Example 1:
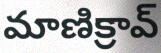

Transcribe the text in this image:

మాణిక్రావ్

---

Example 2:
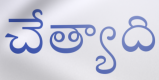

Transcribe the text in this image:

చేత్యాది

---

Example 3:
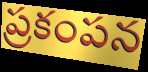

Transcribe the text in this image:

ప్రకంపన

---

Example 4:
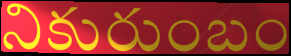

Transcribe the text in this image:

నికురుంబం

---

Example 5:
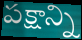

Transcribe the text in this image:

పక్షాన్ని